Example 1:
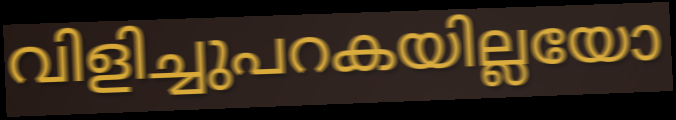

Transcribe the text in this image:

വിളിച്ചുപറകയില്ലയോ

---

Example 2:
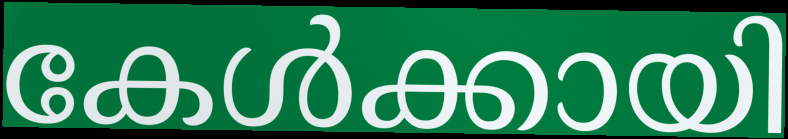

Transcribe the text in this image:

കേൾക്കായി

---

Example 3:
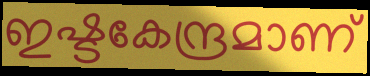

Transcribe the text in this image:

ഇഷ്ടകേന്ദ്രമാണ്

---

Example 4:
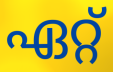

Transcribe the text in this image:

ഏറ്റ്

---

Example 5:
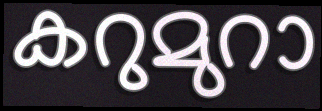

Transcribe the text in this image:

കറുമുറാ